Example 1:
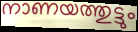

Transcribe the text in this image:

നാണയത്തുട്ടും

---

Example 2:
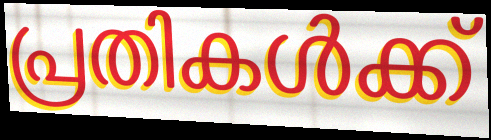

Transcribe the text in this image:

പ്രതികൾക്ക്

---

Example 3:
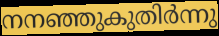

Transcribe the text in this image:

നനഞ്ഞുകുതിർന്നു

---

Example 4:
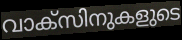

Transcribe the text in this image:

വാക്സിനുകളുടെ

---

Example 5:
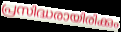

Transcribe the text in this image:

പ്രസിദ്ധരായിരിക്കും